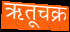
ऋतूचक्र